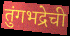
तुंगभद्रेची